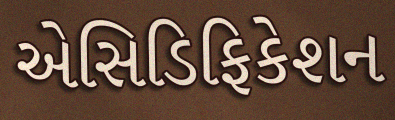
એસિડિફિકેશન